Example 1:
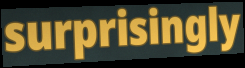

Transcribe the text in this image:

surprisingly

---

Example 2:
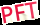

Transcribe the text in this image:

PFT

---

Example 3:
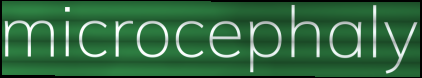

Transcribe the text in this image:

microcephaly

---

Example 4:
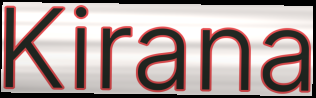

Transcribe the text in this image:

Kirana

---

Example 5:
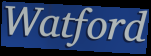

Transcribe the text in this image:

Watford